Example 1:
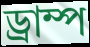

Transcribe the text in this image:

ড্রাম্প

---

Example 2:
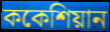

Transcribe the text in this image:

ককেশিয়ান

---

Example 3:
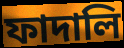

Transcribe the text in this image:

ফাদালি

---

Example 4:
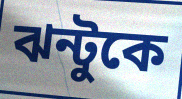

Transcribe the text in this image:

ঝন্টুকে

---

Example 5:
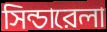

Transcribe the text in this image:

সিন্ডারেলা